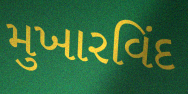
મુખારવિંદ